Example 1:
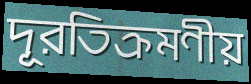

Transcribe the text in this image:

দূরতিক্রমণীয়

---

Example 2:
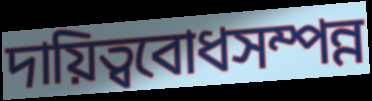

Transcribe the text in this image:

দায়িত্ববোধসম্পন্ন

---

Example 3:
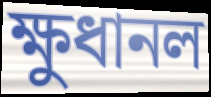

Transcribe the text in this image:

ক্ষুধানল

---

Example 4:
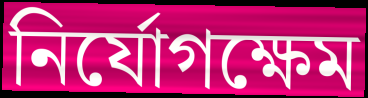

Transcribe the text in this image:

নির্যোগক্ষেম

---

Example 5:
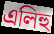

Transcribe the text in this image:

এলিহু